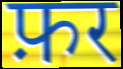
फ़र